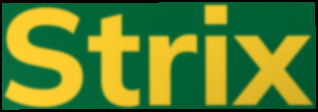
Strix